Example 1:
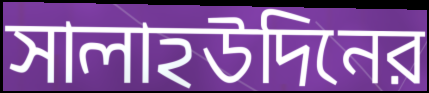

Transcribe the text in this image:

সালাহউদিনের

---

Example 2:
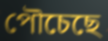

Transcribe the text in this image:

পৌচেছে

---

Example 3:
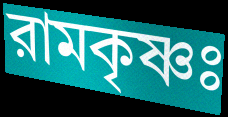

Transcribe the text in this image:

রামকৃষ্ণঃ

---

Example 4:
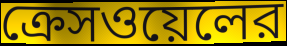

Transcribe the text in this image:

ক্রেসওয়েলের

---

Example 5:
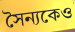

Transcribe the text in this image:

সৈন্যকেও